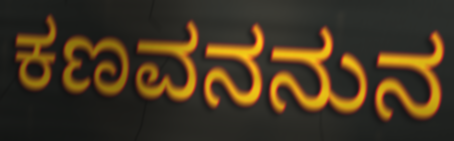
ಕಣವನನುನ